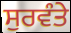
ਸੁਰਵੰਤੇ